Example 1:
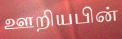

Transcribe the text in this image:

ஊறியபின்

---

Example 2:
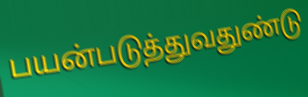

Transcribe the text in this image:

பயன்படுத்துவதுண்டு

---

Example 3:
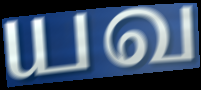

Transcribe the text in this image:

யவ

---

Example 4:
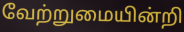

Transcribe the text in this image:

வேற்றுமையின்றி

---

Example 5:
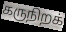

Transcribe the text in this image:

கருநிறக்